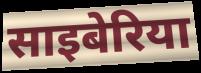
साइबेरिया